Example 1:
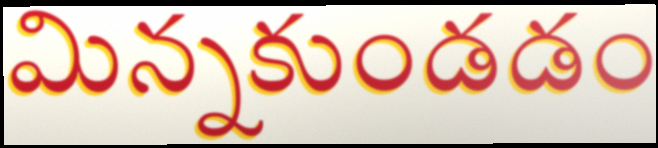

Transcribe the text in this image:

మిన్నకుండడం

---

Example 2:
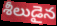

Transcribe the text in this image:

శీలుడైన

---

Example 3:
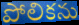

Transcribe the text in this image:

పోలికను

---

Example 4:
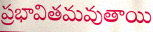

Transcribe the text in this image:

ప్రభావితమవుతాయి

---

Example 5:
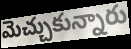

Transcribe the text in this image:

మెచ్చుకున్నారు